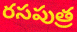
రసపుత్ర